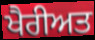
ਖੈਰੀਅਤ